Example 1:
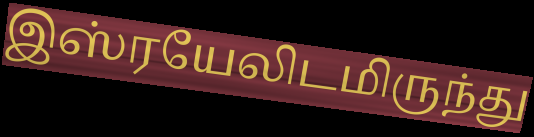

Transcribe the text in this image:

இஸ்ரயேலிடமிருந்து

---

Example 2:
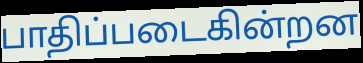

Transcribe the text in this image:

பாதிப்படைகின்றன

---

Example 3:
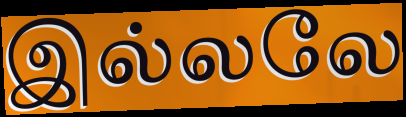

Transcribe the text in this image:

இல்லலே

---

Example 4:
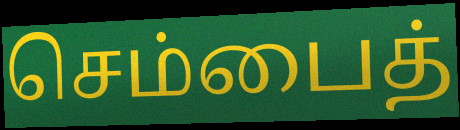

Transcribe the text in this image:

செம்பைத்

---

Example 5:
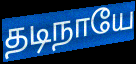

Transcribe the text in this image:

தடிநாயே